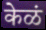
केळं